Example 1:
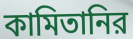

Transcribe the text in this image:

কামিতানির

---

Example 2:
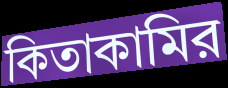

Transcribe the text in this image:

কিতাকামির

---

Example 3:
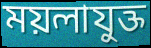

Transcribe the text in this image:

ময়লাযুক্ত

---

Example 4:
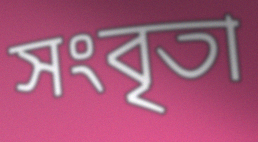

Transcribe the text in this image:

সংবৃতা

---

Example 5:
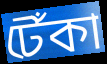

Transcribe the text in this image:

টেঁকা